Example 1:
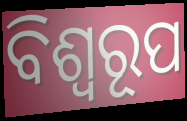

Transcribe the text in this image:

ବିଶ୍ୱରୂପ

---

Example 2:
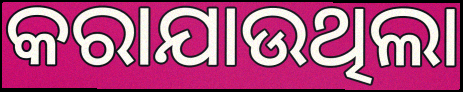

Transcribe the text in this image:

କରାଯାଉଥିଲା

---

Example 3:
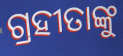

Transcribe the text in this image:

ଗ୍ରହୀତାଙ୍କୁ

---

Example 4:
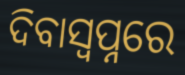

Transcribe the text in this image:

ଦିବାସ୍ବପ୍ନରେ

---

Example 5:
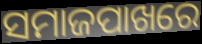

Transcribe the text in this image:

ସମାଜପାଖରେ